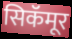
सिकॅमूर